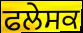
ਫਲੇਸਕ